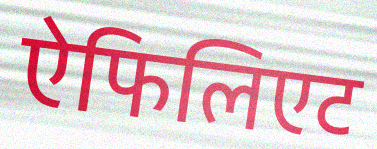
ऐफिलिएट